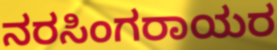
ನರಸಿಂಗರಾಯರ